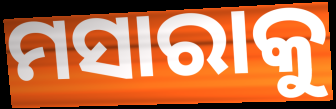
ମସାରାକୁ